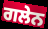
ਗਲੇਨ